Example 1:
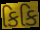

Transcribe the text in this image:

કિકિ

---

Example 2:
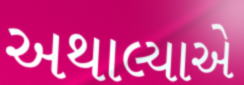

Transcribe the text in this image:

અથાલ્યાએ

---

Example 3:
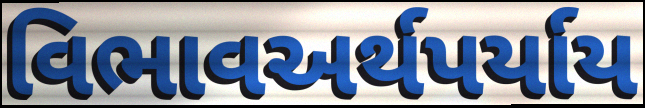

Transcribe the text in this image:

વિભાવઅર્થપર્યાય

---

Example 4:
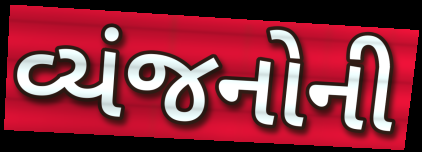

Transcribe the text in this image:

વ્યંજનોની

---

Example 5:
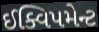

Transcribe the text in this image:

ઈક્વિપમેન્ટ